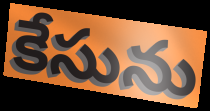
కేసును